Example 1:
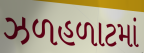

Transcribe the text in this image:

ઝળહળાટમાં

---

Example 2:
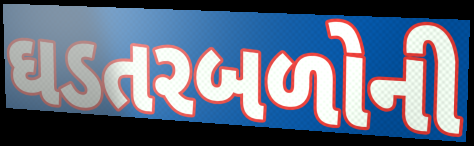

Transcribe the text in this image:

ઘડતરબળોની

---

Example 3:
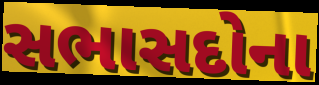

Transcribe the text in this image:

સભાસદોના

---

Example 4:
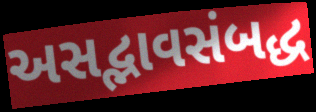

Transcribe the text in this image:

અસદ્ભાવસંબદ્ધ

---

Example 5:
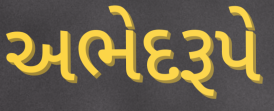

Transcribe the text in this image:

અભેદરૂપે